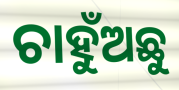
ଚାହୁଁଅଛୁ